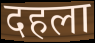
दहला